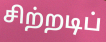
சிற்றடிப்